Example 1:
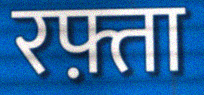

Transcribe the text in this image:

रफ़्ता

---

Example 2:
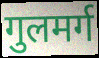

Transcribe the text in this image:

गुलमर्ग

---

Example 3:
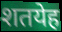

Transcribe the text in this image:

शतयेह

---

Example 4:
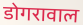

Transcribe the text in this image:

डोगरावाल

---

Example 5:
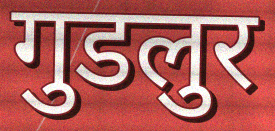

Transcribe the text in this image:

गुडलुर